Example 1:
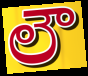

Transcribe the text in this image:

లౌ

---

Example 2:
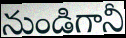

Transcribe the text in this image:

నుండిగానీ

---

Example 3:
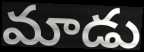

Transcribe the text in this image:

మాడు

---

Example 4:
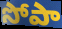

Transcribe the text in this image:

సోపా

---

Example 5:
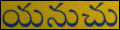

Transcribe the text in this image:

యనుచు